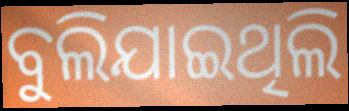
ବୁଲିଯାଇଥିଲି